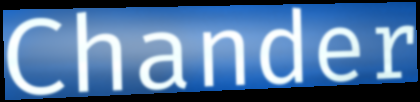
Chander